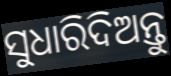
ସୁଧାରିଦିଅନ୍ତୁ